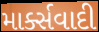
માર્ક્સવાદી